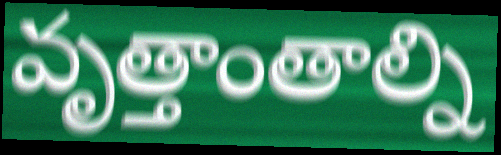
వృత్తాంతాల్ని